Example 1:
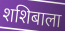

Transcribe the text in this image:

शशिबाला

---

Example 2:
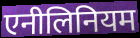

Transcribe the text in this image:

एनीलिनियम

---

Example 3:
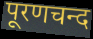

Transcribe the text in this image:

पूरणचन्द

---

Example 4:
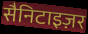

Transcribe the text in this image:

सैनिटाइज़र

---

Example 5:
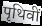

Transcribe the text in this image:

पृथिवीं